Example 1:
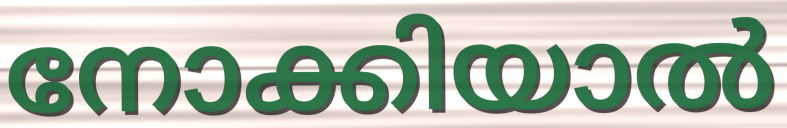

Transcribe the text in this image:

നോക്കിയാൽ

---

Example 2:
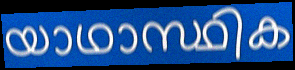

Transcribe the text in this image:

യാഥാസ്ഥിക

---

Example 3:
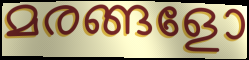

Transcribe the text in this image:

മരങ്ങളോ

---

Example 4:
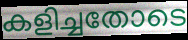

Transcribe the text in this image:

കളിച്ചതോടെ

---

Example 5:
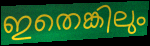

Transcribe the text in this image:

ഇതെങ്കിലും